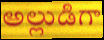
అల్లుడిగా